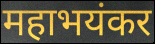
महाभयंकर